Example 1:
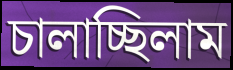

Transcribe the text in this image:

চালাচ্ছিলাম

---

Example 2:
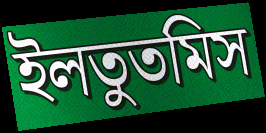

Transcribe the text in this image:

ইলতুতমিস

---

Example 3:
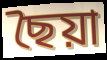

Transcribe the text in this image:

ছৈয়া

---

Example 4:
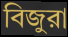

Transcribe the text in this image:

বিজুরা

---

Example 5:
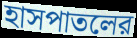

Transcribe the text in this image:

হাসপাতলের